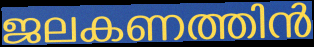
ജലകണത്തിൻ